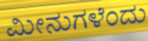
ಮೀನುಗಳೆಂದು